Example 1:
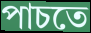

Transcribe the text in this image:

পাচতে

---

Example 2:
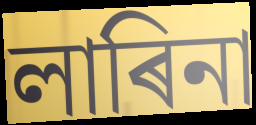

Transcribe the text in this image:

লাৰিনা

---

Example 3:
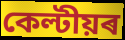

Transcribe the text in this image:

কেল্টীয়ৰ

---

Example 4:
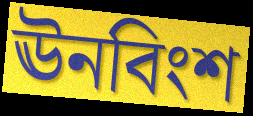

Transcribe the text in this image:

ঊনবিংশ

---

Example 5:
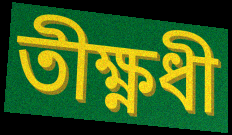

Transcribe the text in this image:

তীক্ষ্ণধী